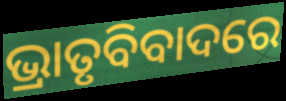
ଭ୍ରାତୃବିବାଦରେ